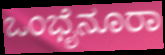
ಒಂಭೈನೂರಾ